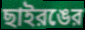
ছাইরঙের